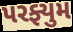
પરફ્યુમ